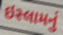
ઇસ્લામનું